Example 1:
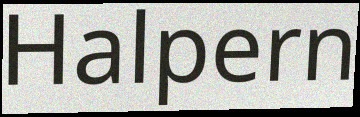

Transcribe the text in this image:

Halpern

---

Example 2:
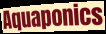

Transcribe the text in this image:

Aquaponics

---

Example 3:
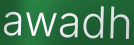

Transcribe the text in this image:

awadh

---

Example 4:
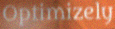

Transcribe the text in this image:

Optimizely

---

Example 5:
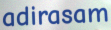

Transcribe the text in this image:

adirasam